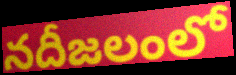
నదీజలంలో